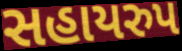
સહાયરુપ